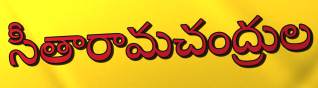
సీతారామచంద్రుల